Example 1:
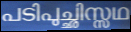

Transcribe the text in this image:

പടിപുച്ഛിസ്സഥ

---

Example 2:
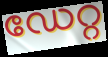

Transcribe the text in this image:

ഡേറ്റ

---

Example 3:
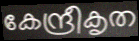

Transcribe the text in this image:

കേന്ദ്രീകൃത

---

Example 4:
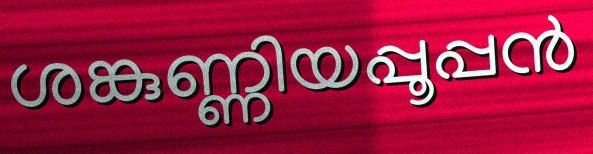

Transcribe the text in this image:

ശങ്കുണ്ണിയപ്പൂപ്പൻ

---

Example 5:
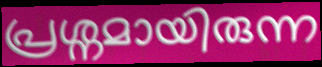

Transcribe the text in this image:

പ്രശ്നമായിരുന്ന